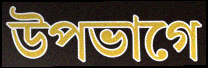
উপভাগে